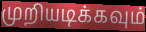
முறியடிக்கவும்